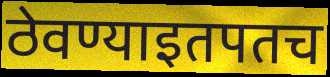
ठेवण्याइतपतच